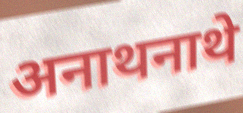
अनाथनाथे